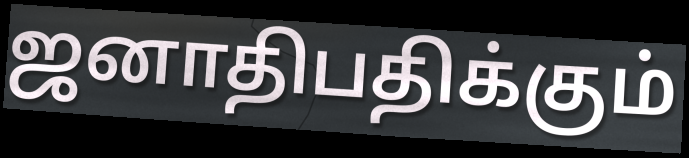
ஜனாதிபதிக்கும்